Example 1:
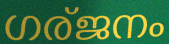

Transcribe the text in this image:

ഗര്ജനം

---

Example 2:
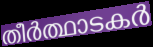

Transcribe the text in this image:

തീർത്ഥാടകർ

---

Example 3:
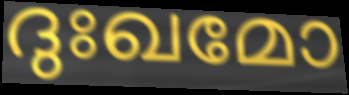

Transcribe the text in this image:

ദുഃഖമോ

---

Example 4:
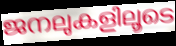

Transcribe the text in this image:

ജനലുകളിലൂടെ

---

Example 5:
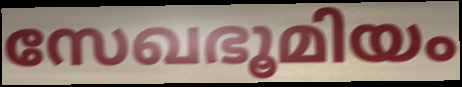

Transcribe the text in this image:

സേഖഭൂമിയം